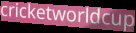
cricketworldcup